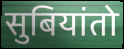
सुबियांतो